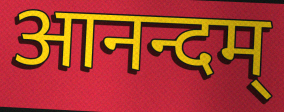
आनन्दम्